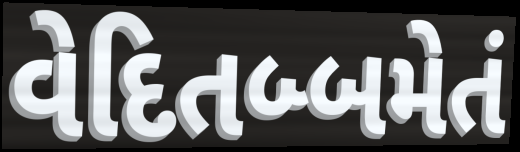
વેદિતબ્બમેતં